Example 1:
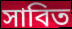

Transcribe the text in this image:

সাবিত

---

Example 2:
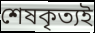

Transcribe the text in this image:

শেষকৃত্যই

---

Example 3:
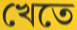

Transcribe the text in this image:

খেতে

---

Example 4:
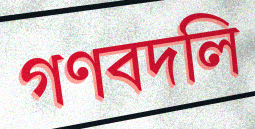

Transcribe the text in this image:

গণবদলি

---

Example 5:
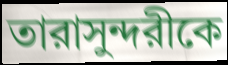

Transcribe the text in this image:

তারাসুন্দরীকে